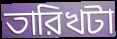
তারিখটা